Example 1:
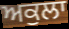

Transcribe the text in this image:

ਅਕੁਲਾ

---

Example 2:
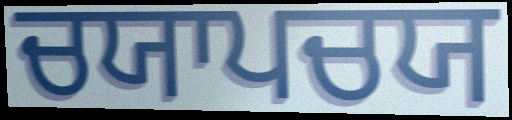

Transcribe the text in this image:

ਚਯਾਪਚਯ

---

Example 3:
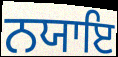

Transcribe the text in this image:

ਨਯਾਇ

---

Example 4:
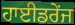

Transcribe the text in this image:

ਹਾਈਡਰੇਂਜ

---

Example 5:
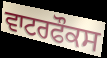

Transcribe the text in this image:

ਵਾਟਰਫੌਕਸ